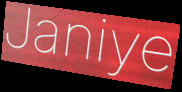
Janiye